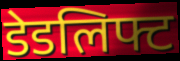
डेडलिफ्ट